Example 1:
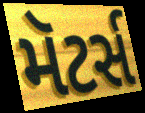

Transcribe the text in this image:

મૅટર્સ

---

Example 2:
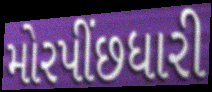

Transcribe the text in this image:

મોરપીંછધારી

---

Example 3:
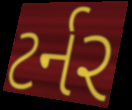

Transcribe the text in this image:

ટર્નર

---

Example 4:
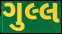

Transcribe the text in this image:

ગુલ્લ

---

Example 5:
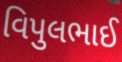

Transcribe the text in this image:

વિપુલભાઈ